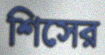
শিসের